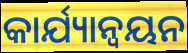
କାର୍ଯ୍ୟାନ୍ବୟନ